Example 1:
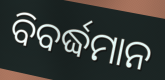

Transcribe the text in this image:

ବିବର୍ଦ୍ଧମାନ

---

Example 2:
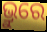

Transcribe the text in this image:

ଭ୍ରୁରେ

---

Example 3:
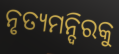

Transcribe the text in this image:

ନୃତ୍ୟମନ୍ଦିରକୁ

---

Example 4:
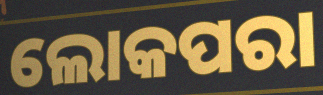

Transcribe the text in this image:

ଲୋକପରା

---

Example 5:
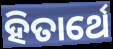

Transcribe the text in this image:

ହିତାର୍ଥେ